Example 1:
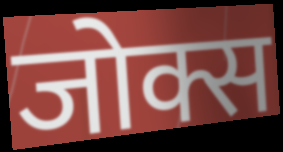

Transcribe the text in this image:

जोक्स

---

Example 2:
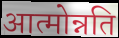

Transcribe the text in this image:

आत्मोन्नति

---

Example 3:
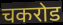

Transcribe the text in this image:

चकरोड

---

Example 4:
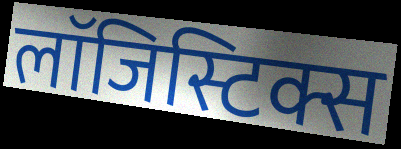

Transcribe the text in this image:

लॉजिस्टिक्स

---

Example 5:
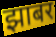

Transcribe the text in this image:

झाबर